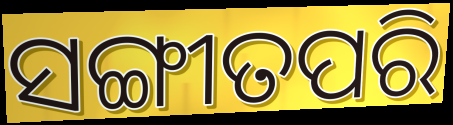
ସଙ୍ଗୀତପରି